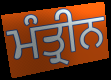
ਮੰਤ੍ਰੀਨ